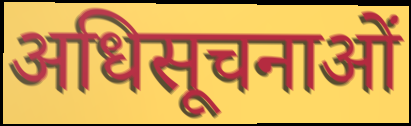
अधिसूचनाओं